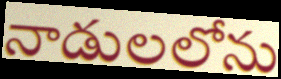
నాడులలోను